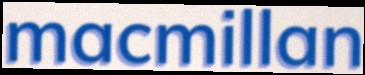
macmillan